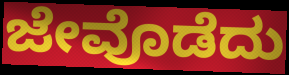
ಜೇವೊಡೆದು